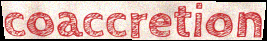
coaccretion